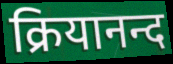
क्रियानन्द